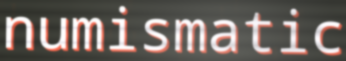
numismatic